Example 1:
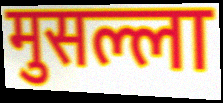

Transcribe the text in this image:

मुसल्ला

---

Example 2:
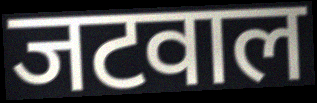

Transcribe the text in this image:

जटवाल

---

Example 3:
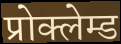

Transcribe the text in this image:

प्रोक्लेम्ड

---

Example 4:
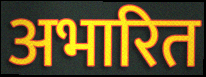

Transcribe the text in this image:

अभारित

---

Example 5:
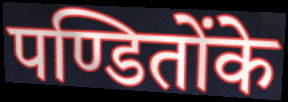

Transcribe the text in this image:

पण्डितोंके